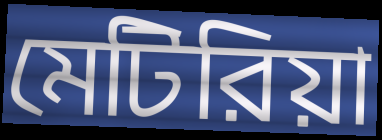
মেটিরিয়া